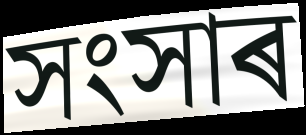
সংসাৰ